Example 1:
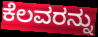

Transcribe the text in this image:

ಕೆಲವರನ್ನು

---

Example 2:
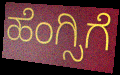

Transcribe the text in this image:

ಹೆಂಗ್ಸಿಗೆ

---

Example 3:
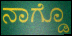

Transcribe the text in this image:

ನಾಗ್ಡೊ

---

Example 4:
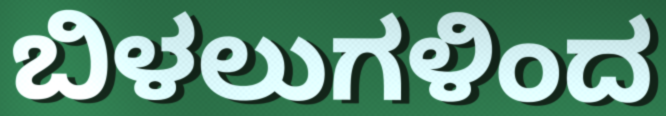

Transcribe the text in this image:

ಬಿಳಲುಗಳಿಂದ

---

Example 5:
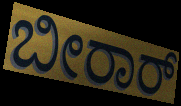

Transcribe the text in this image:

ಬೀರಾರ್